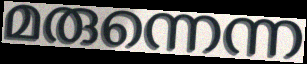
മരുന്നെന്ന